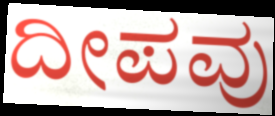
ದೀಪವು